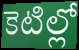
కెటిల్లో